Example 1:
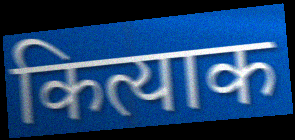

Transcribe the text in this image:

कित्याक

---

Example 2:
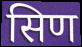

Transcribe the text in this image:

सिण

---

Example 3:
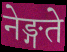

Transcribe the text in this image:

नेङ्गते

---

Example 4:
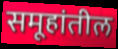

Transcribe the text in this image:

समूहांतील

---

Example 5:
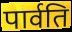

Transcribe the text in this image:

पार्वति